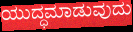
ಯುದ್ಧಮಾಡುವುದು